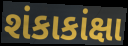
શંકાકાંક્ષા